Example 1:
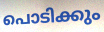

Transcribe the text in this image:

പൊടിക്കും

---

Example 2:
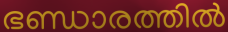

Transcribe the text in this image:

ഭണ്ഡാരത്തിൽ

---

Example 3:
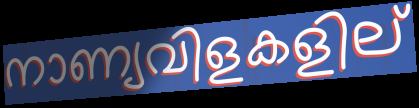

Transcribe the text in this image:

നാണ്യവിളകളില്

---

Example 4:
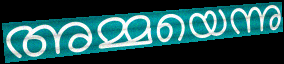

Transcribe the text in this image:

അമ്മയെന്നു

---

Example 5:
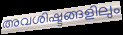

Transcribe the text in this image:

അവശിഷ്ടങ്ങളിലും